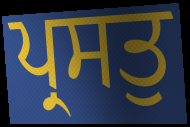
ਪ੍ਰਸਤੁ